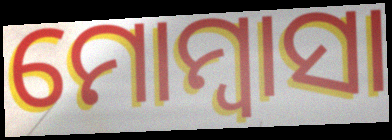
ମୋମ୍ବାସା